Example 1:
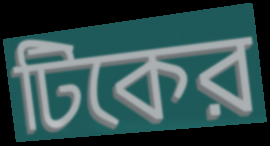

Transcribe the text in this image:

টিকের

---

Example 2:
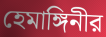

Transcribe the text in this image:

হেমাঙ্গিনীর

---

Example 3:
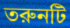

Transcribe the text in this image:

তরুনটি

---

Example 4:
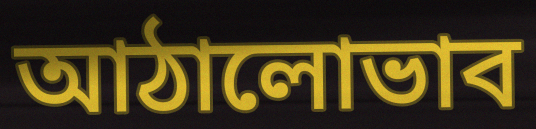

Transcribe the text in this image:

আঠালোভাব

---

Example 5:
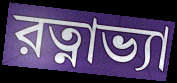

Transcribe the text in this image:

রত্নাভ্যা